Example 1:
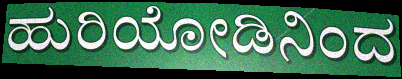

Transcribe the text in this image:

ಹುರಿಯೋಡಿನಿಂದ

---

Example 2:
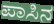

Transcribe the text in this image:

ಪಾಸಿನ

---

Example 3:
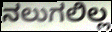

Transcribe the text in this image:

ನಲುಗಲಿಲ್ಲ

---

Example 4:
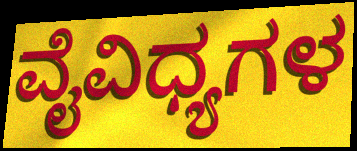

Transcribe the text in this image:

ವೈವಿಧ್ಯಗಳ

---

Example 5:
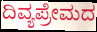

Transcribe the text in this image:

ದಿವ್ಯಪ್ರೇಮದ